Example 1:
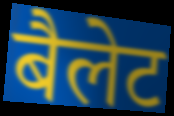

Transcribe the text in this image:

बैलेट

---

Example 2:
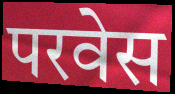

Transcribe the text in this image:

परवेस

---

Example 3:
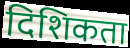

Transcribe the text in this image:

दिशिकता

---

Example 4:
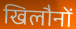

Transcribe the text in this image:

खिलौनों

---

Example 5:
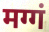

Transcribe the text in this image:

मग्गं